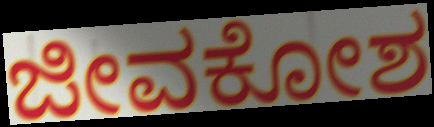
ಜೀವಕೋಶ